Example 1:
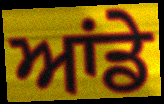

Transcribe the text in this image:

ਆਂਡੇ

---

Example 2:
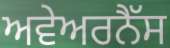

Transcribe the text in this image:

ਅਵੇਅਰਨੈੱਸ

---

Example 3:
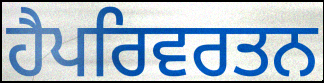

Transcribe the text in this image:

ਹੈਪਰਿਵਰਤਨ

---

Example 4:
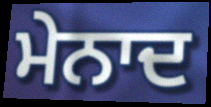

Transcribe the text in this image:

ਮੇਨਾਦ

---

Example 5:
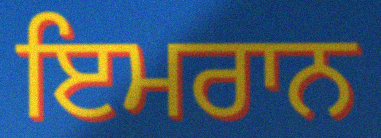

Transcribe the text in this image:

ਇਮਰਾਨ